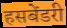
हसबेंडरी